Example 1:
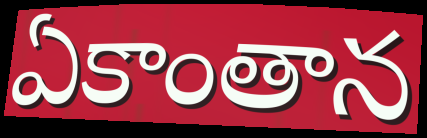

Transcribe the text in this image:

ఏకాంతాన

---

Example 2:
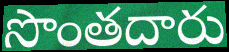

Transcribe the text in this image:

సొంతదారు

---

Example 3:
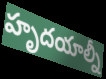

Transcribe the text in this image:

హృదయాల్నీ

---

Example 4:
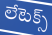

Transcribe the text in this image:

లేటెక్స్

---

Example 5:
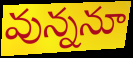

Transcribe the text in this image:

వున్ననూ